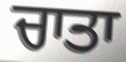
ਚਾਤਾ